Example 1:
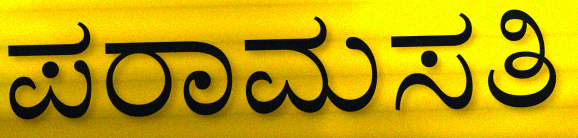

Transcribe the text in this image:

ಪರಾಮಸತಿ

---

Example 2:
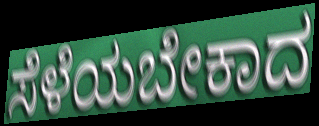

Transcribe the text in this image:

ಸೆಳೆಯಬೇಕಾದ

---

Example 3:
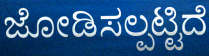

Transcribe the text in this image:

ಜೋಡಿಸಲ್ಪಟ್ಟಿದೆ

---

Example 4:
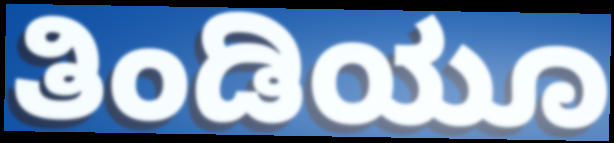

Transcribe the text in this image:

ತಿಂಡಿಯೂ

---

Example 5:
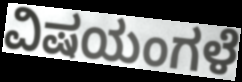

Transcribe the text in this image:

ವಿಷಯಂಗಳೆ